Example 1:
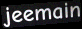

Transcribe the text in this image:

jeemain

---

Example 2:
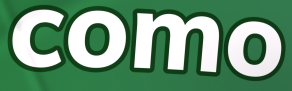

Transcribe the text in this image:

como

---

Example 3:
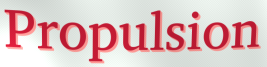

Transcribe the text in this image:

Propulsion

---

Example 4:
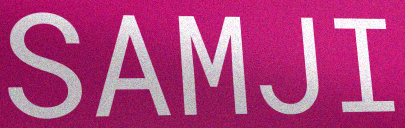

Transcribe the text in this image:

SAMJI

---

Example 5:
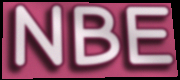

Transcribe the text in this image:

NBE